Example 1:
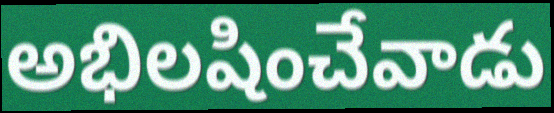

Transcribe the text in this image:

అభిలషించేవాడు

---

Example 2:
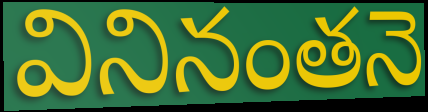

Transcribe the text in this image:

వినినంతనె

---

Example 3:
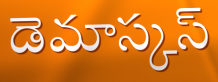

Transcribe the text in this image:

డెమాస్కస్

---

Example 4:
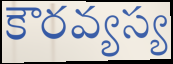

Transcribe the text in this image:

కౌరవ్యస్య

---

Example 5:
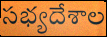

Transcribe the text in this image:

సభ్యదేశాల